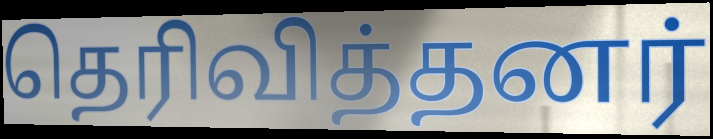
தெரிவித்தனர்